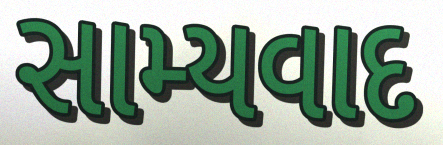
સામ્યવાદ